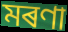
মৰণা